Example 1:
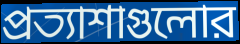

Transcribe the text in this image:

প্রত্যাশাগুলোর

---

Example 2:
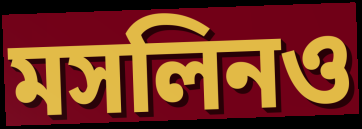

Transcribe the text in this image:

মসলিনও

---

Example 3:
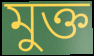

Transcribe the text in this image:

মুক্ত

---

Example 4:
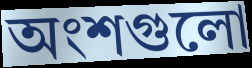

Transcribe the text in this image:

অংশগুলো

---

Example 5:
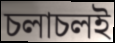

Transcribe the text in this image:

চলাচলই